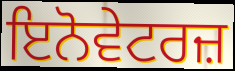
ਇਨੋਵੇਟਰਜ਼